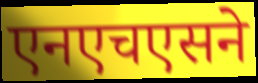
एनएचएसने